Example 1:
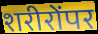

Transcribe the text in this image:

शरीरोंपर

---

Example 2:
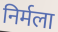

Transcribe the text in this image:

निर्मला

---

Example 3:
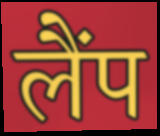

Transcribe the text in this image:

लैंप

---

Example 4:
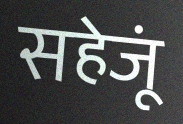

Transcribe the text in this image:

सहेजूं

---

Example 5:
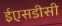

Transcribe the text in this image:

ईएसडीसी